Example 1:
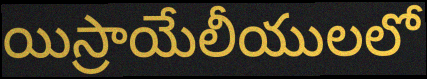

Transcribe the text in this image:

యిస్రాయేలీయులలో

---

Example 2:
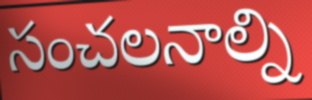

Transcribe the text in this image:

సంచలనాల్ని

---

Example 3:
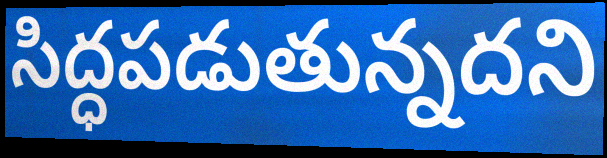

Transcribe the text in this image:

సిద్ధపడుతున్నదని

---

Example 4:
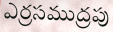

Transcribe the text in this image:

ఎర్రసముద్రపు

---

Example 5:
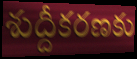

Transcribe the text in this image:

శుద్దీకరణకు